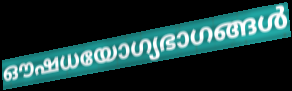
ഔഷധയോഗ്യഭാഗങ്ങൾ